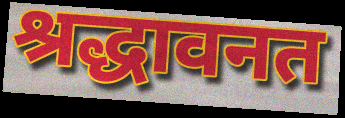
श्रद्धावनत